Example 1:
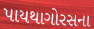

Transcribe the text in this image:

પાયથાગોરસના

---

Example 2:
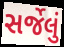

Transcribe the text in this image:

સર્જેલું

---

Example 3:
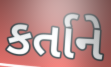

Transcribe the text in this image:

કર્તાને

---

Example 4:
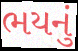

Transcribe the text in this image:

ભયનું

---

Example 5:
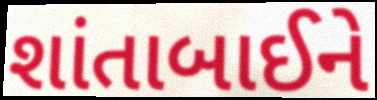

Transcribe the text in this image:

શાંતાબાઈને